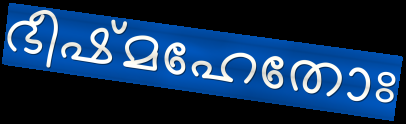
ഭീഷ്മഹേതോഃ